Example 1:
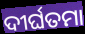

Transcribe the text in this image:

ଦୀର୍ଘତମା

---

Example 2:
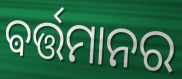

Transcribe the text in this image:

ଵର୍ତ୍ତମାନର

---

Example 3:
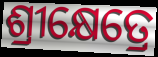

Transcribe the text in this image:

ଶ୍ରୀକ୍ଷେତ୍ରେ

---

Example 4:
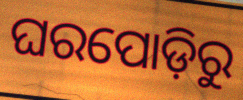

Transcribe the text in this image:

ଘରପୋଡ଼ିରୁ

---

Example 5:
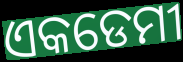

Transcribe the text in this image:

ଏକଡେମୀ